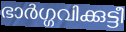
ഭാർഗ്ഗവിക്കുട്ടീ